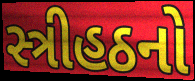
સ્ત્રીહઠનો